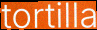
tortilla